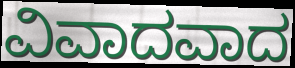
ವಿವಾದವಾದ